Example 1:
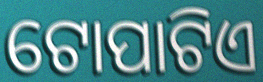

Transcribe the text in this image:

ଟୋପାଟିଏ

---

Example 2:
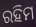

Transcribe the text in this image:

ରହିମ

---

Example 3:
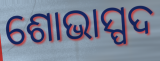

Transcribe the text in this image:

ଶୋଭାସ୍ପଦ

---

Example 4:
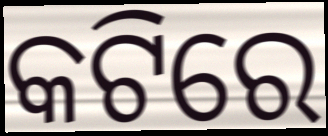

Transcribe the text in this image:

କଟିରେ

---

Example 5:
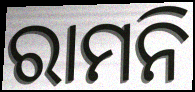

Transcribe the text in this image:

ରାମନି